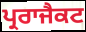
ਪ੍ਰਰਾਜੈਕਟ